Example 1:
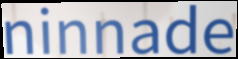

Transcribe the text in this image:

ninnade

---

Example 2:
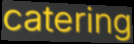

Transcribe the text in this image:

catering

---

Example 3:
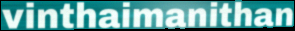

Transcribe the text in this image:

vinthaimanithan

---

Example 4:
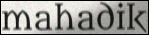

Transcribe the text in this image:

mahadik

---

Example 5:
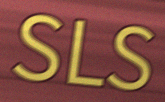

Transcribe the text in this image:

SLS